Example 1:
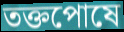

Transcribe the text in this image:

তক্তপোষে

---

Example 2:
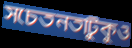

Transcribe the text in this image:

সচেতনতাটুকুও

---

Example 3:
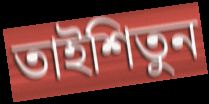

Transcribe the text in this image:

তাইশিতুন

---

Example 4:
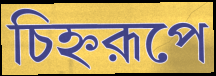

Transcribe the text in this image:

চিহ্নরূপে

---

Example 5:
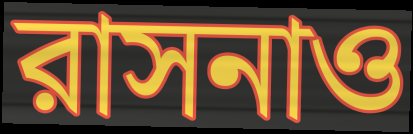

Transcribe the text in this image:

রাসনাও